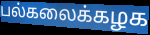
பல்கலைக்கழக